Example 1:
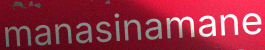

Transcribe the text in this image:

manasinamane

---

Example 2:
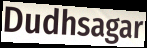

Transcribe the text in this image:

Dudhsagar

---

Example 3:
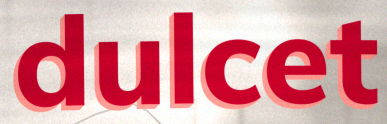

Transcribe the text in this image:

dulcet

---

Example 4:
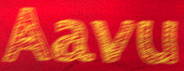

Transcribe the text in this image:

Aavu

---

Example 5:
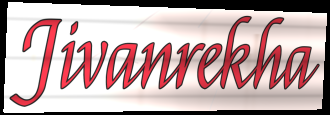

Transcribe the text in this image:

Jivanrekha